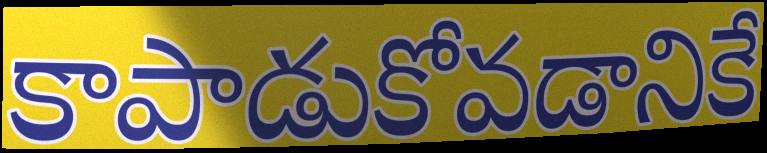
కాపాడుకోవడానికే